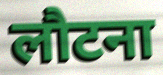
लौटना